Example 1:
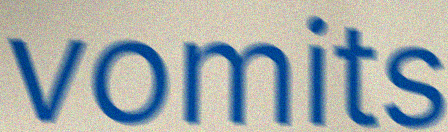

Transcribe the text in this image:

vomits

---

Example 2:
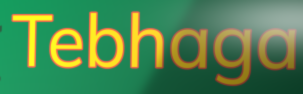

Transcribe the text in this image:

Tebhaga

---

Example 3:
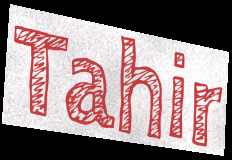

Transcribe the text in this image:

Tahir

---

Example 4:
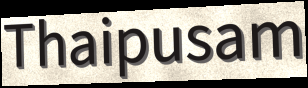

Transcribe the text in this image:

Thaipusam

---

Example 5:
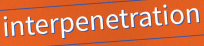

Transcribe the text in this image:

interpenetration